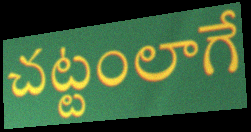
చట్టంలాగే